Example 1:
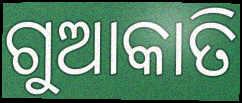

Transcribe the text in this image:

ଗୁଆକାତି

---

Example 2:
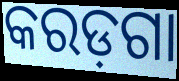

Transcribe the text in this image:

କରଡ଼ଗା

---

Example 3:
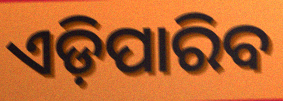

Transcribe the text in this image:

ଏଡ଼ିପାରିବ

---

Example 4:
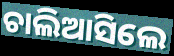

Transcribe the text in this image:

ଚାଲିଆସିଲେ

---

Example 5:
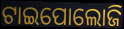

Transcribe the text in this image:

ଟାଇପୋଲୋଜି